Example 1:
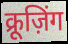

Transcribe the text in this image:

क्रूज़िंग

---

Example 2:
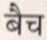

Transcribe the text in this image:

बैच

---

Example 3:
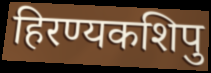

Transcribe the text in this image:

हिरण्यकशिपु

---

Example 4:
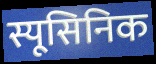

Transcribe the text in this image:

स्यूसिनिक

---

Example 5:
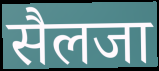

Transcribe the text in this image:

सैलजा